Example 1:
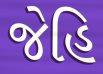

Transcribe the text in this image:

જેહિ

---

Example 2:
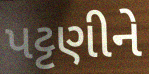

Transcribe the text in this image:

પટ્ટણીને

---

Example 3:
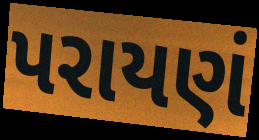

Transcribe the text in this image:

પરાયણં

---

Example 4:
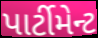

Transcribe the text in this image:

પાર્ટીમેન્ટ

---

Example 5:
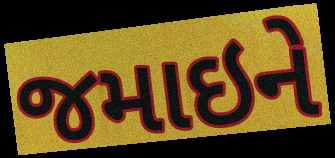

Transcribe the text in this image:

જમાઇને